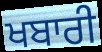
ਖਬਾਰੀ